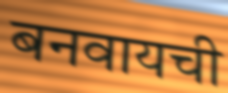
बनवायची